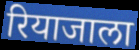
रियाजाला